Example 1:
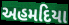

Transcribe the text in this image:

અહમદિયા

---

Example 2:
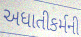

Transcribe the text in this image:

અધાતીકર્મની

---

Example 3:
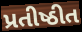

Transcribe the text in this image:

પ્રતીષ્ઠીત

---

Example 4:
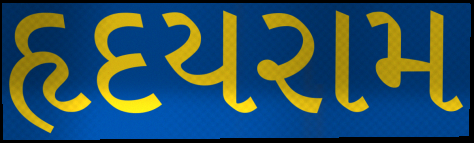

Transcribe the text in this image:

હૃદયરામ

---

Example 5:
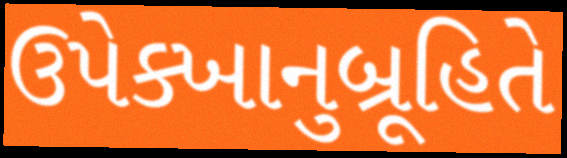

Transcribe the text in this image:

ઉપેક્ખાનુબ્રૂહિતે